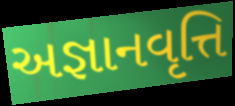
અજ્ઞાનવૃત્તિ